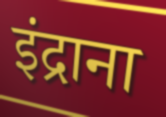
इंद्राना